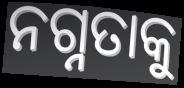
ନଗ୍ନତାକୁ